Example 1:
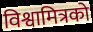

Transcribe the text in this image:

विश्वामित्रको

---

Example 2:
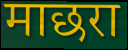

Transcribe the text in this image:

माछरा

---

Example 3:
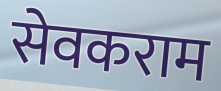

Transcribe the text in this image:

सेवकराम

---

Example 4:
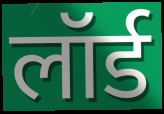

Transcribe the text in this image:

लॉर्ड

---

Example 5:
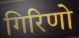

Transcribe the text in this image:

गिरिणो